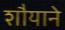
शौयाने